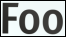
Foo